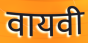
वायवी